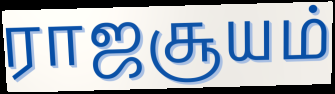
ராஜசூயம்